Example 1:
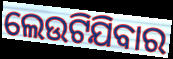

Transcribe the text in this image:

ଲେଉଟିଯିବାର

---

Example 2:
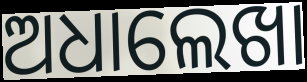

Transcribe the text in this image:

ଅଧାଲେଖା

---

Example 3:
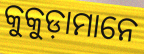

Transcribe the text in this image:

କୁକୁଡ଼ାମାନେ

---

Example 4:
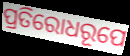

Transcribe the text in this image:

ପ୍ରତିରୋଧରୂପେ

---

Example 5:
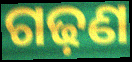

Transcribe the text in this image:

ଗଢ଼ଣ